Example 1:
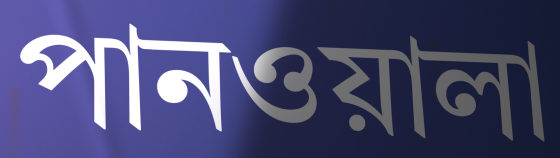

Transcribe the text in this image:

পানওয়ালা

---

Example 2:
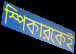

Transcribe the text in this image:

স্পিকারকেই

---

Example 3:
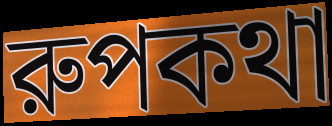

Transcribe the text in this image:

রুপকথা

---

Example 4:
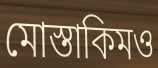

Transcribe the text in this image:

মোস্তাকিমও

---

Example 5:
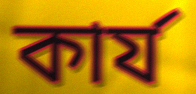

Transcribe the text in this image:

কার্য